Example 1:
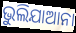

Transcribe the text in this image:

ଭୁଲିଯାଆନା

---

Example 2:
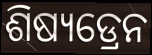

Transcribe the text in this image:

ଶିଷ୍ୟଡ୍ରେନ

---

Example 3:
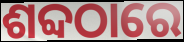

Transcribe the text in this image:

ଶବ୍ଦଠାରେ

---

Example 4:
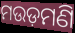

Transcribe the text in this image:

ମଉଡ଼ମଣି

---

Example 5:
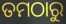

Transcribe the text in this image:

ତମଠାରୁ